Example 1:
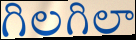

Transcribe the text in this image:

గిలగిలా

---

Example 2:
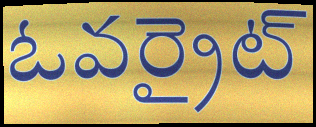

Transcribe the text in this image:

ఓవర్రైట్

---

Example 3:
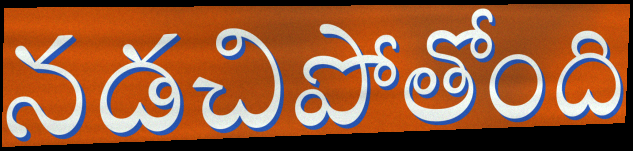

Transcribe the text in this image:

నడచిపోతోంది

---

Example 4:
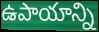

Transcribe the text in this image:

ఉపాయాన్ని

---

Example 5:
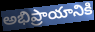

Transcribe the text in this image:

అభిప్రాయానికి